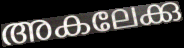
അകലേക്കു